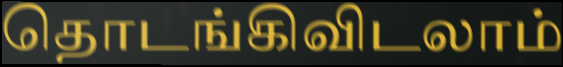
தொடங்கிவிடலாம்